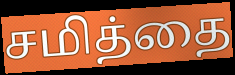
சமித்தை